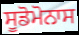
ਸੂਡੋਮੋਨਾਸ